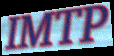
IMTP